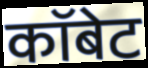
कॉबेट